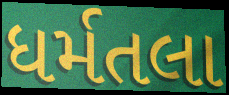
ધર્મતલા